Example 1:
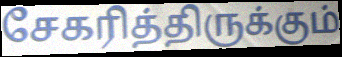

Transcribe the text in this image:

சேகரித்திருக்கும்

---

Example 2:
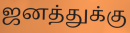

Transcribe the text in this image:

ஜனத்துக்கு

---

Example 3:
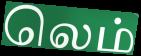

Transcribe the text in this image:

லெம்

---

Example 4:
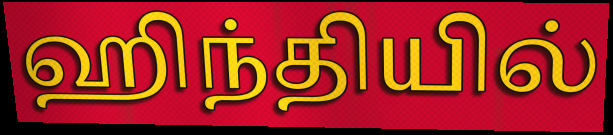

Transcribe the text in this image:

ஹிந்தியில்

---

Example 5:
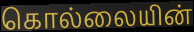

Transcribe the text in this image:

கொல்லையின்